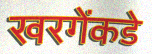
खरगेंकडे